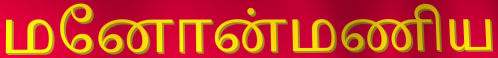
மனோன்மணிய